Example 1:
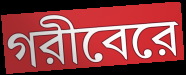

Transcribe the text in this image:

গরীবেরে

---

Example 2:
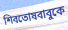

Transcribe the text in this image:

শিবতোষবাবুকে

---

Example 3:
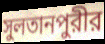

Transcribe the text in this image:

সুলতানপুরীর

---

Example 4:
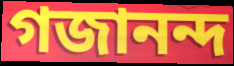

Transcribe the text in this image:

গজানন্দ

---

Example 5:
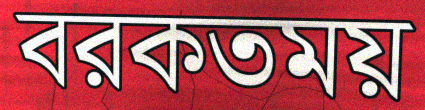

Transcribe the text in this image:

বরকতময়